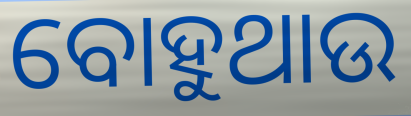
ବୋହୁଥାଉ